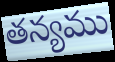
తన్యము